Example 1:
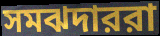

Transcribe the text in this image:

সমঝদাররা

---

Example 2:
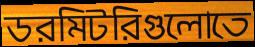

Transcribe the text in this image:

ডরমিটরিগুলোতে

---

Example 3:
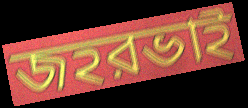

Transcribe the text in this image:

জহরভাই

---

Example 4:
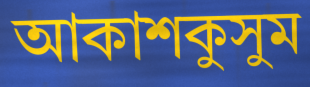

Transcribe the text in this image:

আকাশকুসুম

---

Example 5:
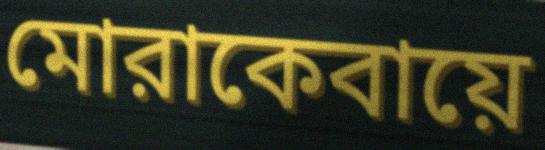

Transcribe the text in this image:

মোরাকেবায়ে